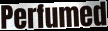
Perfumed